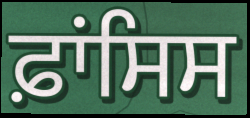
ਫ਼ਾਂਸਿਸ